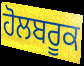
ਹੋਲਬਰੂਕ